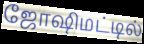
ஜோஷிமட்டில்